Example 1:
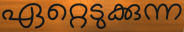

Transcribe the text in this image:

ഏറ്റെടുക്കുന്ന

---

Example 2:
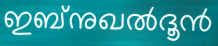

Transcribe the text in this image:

ഇബ്നുഖൽദൂൻ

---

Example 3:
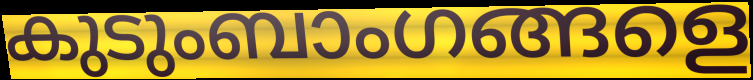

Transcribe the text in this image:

കുടുംബാംഗങ്ങളെ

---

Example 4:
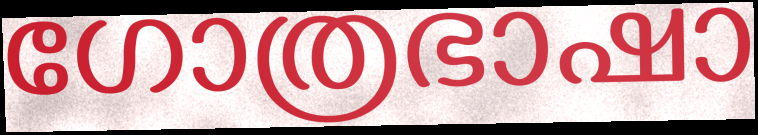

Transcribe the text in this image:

ഗോത്രഭാഷാ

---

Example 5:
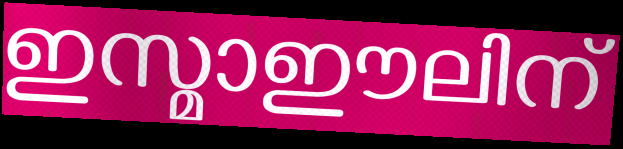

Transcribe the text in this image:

ഇസ്മാഈലിന്